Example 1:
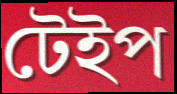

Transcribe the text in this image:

টেইপ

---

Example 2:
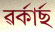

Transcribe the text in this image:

ৱৰ্কাৰ্ছ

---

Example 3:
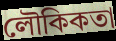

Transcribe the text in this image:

লৌকিকতা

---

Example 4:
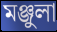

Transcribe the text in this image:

মঞ্জুলা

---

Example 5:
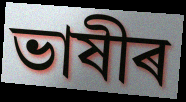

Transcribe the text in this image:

ভাষীৰ